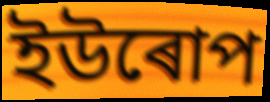
ইউৰোপ